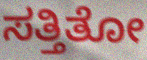
ಸತ್ತಿತೋ